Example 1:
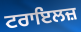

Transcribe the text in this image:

ਟਰਾਇਲਜ਼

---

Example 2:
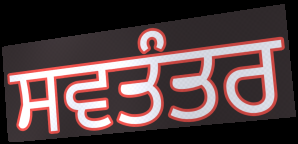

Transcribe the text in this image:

ਸਵਤੰਤਰ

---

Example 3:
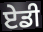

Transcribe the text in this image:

ਏਡੀ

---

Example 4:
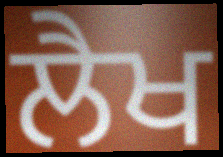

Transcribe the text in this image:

ਲੈਖ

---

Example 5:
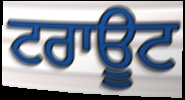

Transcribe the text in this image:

ਟਰਾਊਟ